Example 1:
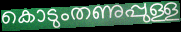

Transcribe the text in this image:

കൊടുംതണുപ്പുള്ള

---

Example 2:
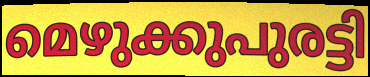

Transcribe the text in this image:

മെഴുക്കുപുരട്ടി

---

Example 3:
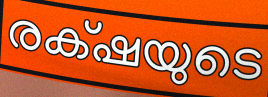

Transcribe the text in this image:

രക്‌ഷയുടെ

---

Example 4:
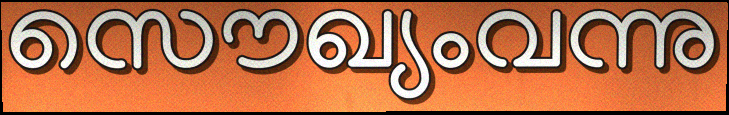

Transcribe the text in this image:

സൌഖ്യംവന്നു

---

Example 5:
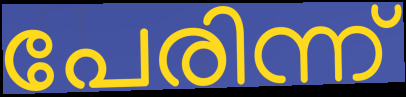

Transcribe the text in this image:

പേരിന്ന്